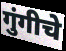
गुंगीचे